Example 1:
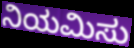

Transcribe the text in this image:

ನಿಯಮಿಸು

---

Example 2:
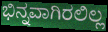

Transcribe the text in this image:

ಭಿನ್ನವಾಗಿರಲಿಲ್ಲ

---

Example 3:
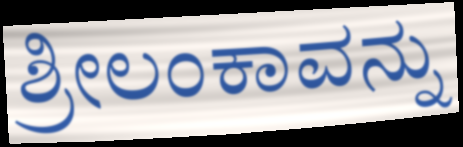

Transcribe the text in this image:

ಶ್ರೀಲಂಕಾವನ್ನು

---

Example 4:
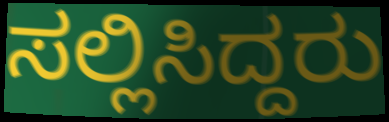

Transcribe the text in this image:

ಸಲ್ಲಿಸಿದ್ದರು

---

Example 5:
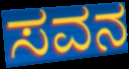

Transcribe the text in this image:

ಸವನ